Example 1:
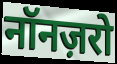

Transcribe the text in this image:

नॉनज़रो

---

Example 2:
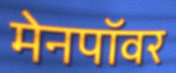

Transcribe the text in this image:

मेनपॉवर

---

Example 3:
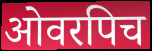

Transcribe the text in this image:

ओवरपिच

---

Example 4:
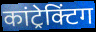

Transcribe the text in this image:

कांट्रेक्टिंग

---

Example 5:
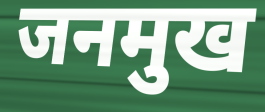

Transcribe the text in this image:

जनमुख